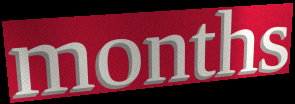
months